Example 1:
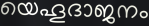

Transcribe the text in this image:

യെഹൂദാജനം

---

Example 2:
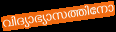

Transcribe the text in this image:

വിദ്യാഭ്യാസത്തിനോ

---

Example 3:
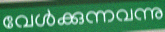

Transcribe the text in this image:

വേൾക്കുന്നവന്നു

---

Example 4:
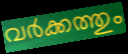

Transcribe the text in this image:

വർക്കത്തും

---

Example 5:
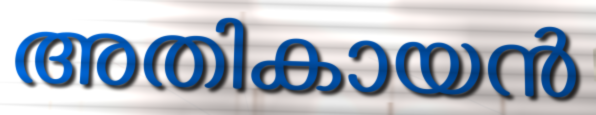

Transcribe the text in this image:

അതികായൻ